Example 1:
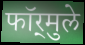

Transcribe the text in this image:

फॉर्मुले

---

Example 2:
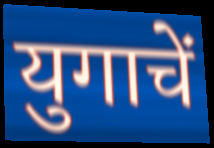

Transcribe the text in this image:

युगाचें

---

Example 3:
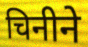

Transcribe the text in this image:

चिनीने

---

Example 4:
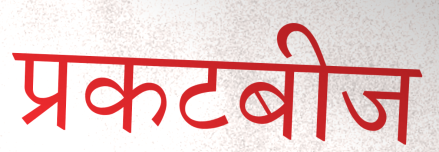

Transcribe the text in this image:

प्रकटबीज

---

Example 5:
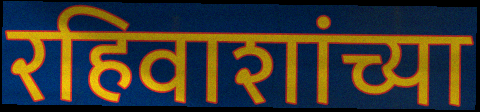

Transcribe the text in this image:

रहिवाशांच्या